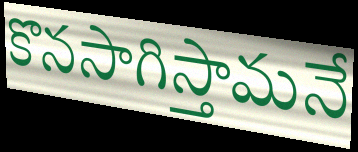
కొనసాగిస్తామనే